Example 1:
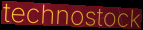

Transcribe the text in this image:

technostock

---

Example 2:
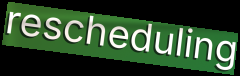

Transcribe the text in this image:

rescheduling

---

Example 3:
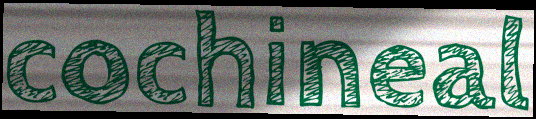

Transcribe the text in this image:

cochineal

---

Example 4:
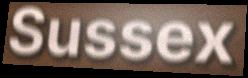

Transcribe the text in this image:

Sussex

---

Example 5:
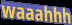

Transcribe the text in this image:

waaahhh